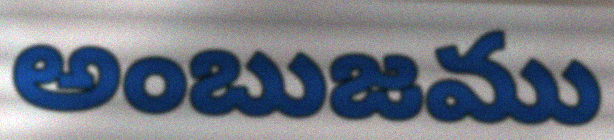
అంబుజము